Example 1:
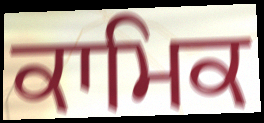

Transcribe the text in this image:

ਕਾਮਿਕ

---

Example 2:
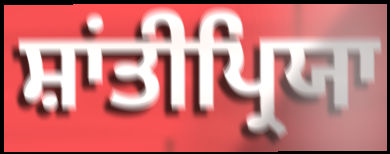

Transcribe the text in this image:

ਸ਼ਾਂਤੀਪ੍ਰਿਯਾ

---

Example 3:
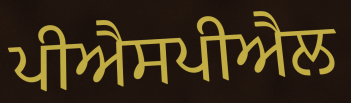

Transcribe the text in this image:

ਪੀਐਸਪੀਐਲ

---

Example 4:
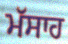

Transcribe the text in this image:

ਮੱਸਾਹ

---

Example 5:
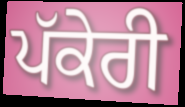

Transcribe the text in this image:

ਪੱਕੇਰੀ